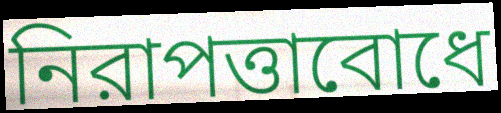
নিরাপত্তাবোধে